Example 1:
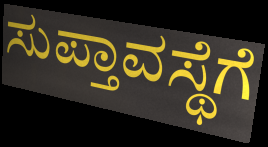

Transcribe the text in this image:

ಸುಪ್ತಾವಸ್ಥೆಗೆ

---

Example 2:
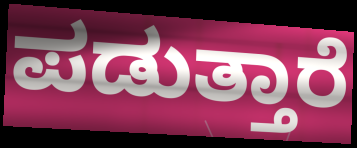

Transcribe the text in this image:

ಪಡುತ್ತಾರೆ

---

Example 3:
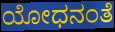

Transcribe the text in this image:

ಯೋಧನಂತೆ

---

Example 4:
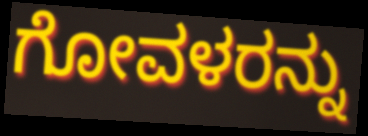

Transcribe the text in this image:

ಗೋವಳರನ್ನು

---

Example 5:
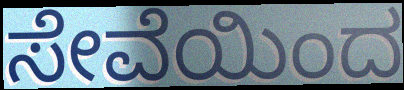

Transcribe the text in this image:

ಸೇವೆಯಿಂದ